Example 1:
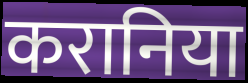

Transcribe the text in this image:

करानिया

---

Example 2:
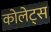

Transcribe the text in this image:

कोलेट्स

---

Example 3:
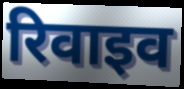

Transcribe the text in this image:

रिवाइव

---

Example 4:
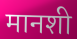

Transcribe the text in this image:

मानशी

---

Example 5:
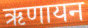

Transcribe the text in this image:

ऋणायन